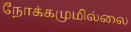
நோக்கமுமில்லை